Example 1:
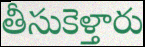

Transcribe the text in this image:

తీసుకెళ్తారు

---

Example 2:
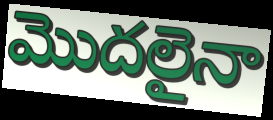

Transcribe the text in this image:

మొదలైనా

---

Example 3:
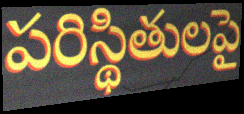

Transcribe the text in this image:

పరిస్థితులపై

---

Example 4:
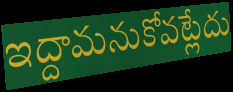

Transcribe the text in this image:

ఇద్దామనుకోవట్లేదు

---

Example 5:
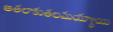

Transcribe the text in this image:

అతలాకుతలమయ్యాయి